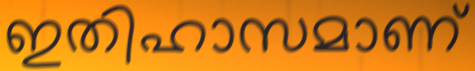
ഇതിഹാസമാണ്